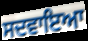
ਸਦਵਾਇਆ